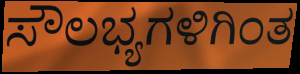
ಸೌಲಭ್ಯಗಳಿಗಿಂತ